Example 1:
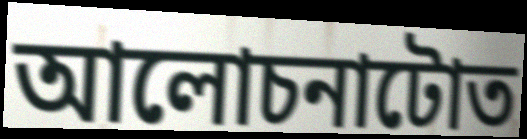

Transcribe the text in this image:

আলোচনাটোত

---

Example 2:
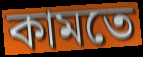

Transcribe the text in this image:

কামতে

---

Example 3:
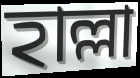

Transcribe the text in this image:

হাল্লা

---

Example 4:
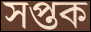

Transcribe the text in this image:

সপ্তক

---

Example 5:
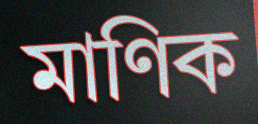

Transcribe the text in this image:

মাণিক